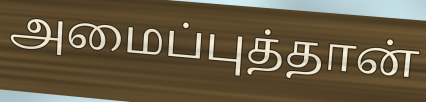
அமைப்புத்தான்